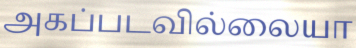
அகப்படவில்லையா